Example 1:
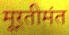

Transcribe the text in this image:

मूर्तीमंत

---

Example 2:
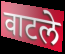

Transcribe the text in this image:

वाटले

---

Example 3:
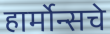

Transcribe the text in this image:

हार्मोन्सचे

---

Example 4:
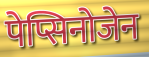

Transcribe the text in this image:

पेप्सिनोजेन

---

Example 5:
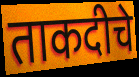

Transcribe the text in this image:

ताकदीचे